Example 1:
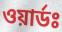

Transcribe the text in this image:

ওয়ার্ডঃ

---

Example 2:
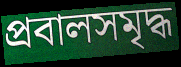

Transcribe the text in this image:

প্রবালসমৃদ্ধ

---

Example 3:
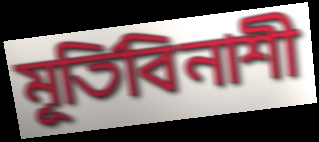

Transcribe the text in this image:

মূর্তিবিনাশী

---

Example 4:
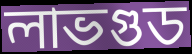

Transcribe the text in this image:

লাভগুড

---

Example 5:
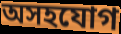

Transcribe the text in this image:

অসহযোগ